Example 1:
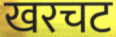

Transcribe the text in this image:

खरचट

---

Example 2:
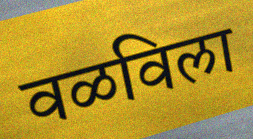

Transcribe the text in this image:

वळविला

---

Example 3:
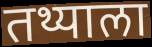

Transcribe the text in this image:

तथ्याला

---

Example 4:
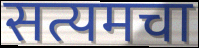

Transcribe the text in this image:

सत्यमचा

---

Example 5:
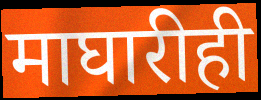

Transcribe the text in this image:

माघारीही